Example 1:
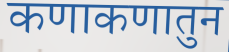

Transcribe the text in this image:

कणाकणातुन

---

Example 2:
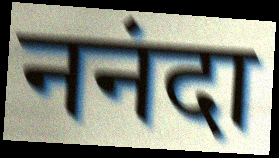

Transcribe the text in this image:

ननंदा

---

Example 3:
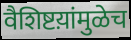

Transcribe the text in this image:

वैशिष्टय़ांमुळेच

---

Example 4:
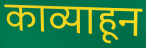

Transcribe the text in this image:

काव्याहून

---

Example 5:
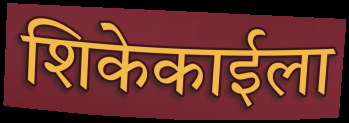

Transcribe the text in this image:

शिकेकाईला